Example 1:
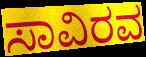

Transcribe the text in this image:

ಸಾವಿರವ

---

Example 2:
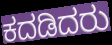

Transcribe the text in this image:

ಕದಡಿದರು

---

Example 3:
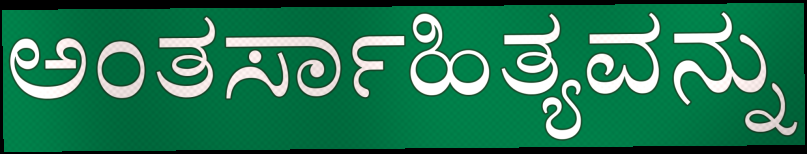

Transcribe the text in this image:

ಅಂತರ್ಸಾಹಿತ್ಯವನ್ನು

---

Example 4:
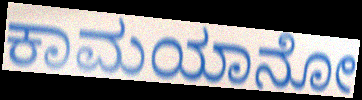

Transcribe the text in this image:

ಕಾಮಯಾನೋ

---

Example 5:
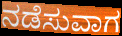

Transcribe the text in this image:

ನಡೆಸುವಾಗ